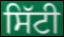
ਸਿੱਟੀ